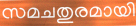
സമചതുരമായി